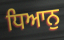
ਧਿਆਨੁ